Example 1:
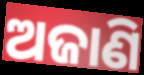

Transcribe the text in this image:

ଅଜାଣି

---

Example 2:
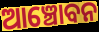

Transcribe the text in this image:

ଆଞ୍ଚୋବନ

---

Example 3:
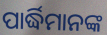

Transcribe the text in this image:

ପାର୍ଦ୍ଧିମାନଙ୍କ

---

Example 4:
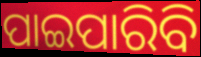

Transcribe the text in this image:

ପାଇପାରିବି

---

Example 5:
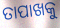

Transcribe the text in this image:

ତାପାଖକୁ